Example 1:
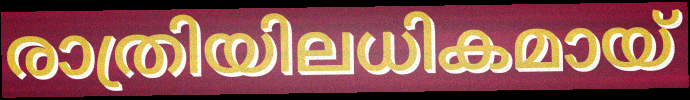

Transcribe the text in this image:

രാത്രിയിലധികമായ്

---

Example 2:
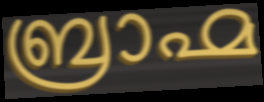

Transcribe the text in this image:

ബ്രാഹ്മ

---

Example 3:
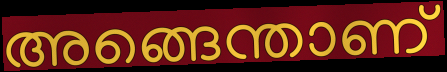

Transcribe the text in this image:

അങ്ങെന്താണ്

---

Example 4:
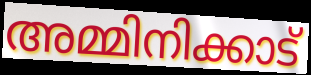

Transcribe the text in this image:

അമ്മിനിക്കാട്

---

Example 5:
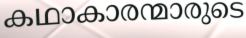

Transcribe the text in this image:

കഥാകാരന്മാരുടെ